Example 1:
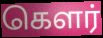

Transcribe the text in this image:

கௌர்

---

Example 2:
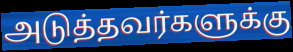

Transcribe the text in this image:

அடுத்தவர்களுக்கு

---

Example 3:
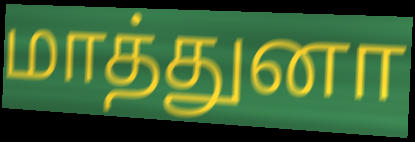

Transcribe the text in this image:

மாத்துனா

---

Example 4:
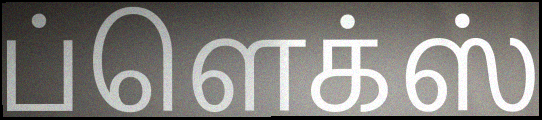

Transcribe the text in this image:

ப்ளெக்ஸ்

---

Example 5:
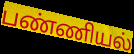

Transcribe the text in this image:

பண்ணியல்